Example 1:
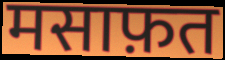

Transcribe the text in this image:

मसाफ़त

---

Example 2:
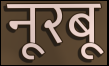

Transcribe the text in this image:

नूरबू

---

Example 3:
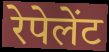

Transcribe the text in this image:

रेपेलेंट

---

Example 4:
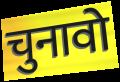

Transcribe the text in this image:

चुनावो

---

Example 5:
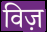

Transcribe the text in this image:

विज़